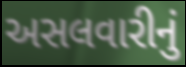
અસલવારીનું